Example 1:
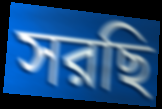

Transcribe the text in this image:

সরছি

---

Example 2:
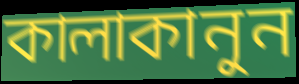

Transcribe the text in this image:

কালাকানুন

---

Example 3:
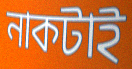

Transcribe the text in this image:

নাকটাই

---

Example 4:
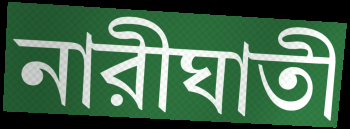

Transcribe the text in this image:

নারীঘাতী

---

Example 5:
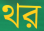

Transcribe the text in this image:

থর